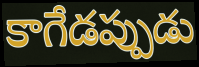
కాగేడప్పుడు